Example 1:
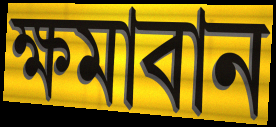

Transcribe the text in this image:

ক্ষমাবান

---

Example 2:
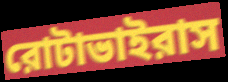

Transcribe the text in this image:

রোটাভাইরাস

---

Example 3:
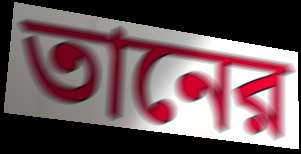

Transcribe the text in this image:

তানের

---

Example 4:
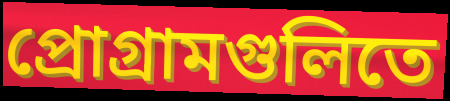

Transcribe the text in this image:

প্রোগ্রামগুলিতে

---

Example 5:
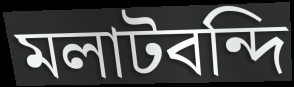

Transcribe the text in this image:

মলাটবন্দি